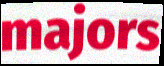
majors